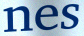
nes